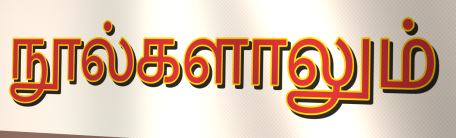
நூல்களாலும்